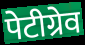
पेटीग्रेव